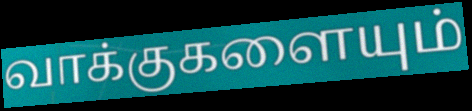
வாக்குகளையும்